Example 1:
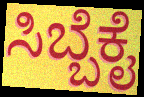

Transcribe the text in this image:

ಸಿಬ್ಬೆಕೈ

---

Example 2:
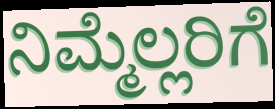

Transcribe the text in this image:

ನಿಮ್ಮೆಲ್ಲರಿಗೆ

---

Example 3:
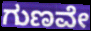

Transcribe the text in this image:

ಗುಣವೇ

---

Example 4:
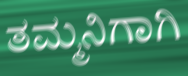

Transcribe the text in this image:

ತಮ್ಮನಿಗಾಗಿ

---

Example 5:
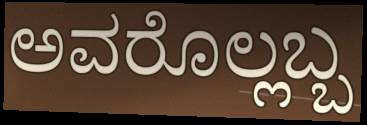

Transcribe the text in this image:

ಅವರೊಲ್ಲಬ್ಬ